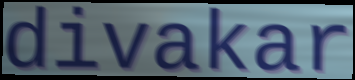
divakar